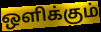
ஒளிக்கும்